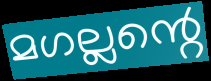
മഗല്ലന്റെ